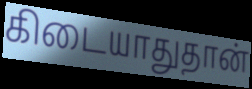
கிடையாதுதான்